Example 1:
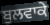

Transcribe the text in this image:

ਬੁਲਵਾਕੇ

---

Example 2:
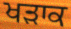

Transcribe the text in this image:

ਖੜਾਕ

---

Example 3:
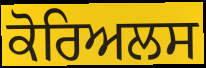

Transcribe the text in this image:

ਕੋਰਿਅਲਸ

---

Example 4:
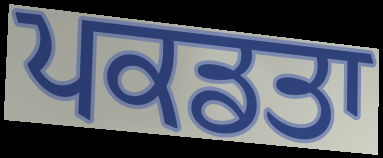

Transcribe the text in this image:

ਪਕਡਤਾ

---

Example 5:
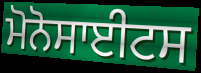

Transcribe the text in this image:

ਮੋਨੋਸਾਈਟਸ